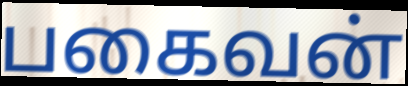
பகைவன்